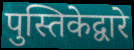
पुस्तिकेद्वारे